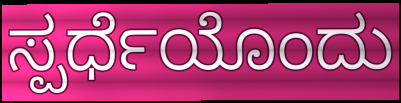
ಸ್ಪರ್ಧೆಯೊಂದು